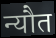
न्यौत